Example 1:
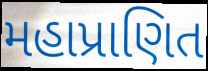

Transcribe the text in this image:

મહાપ્રાણિત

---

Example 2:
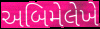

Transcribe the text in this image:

અબિમેલેખે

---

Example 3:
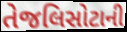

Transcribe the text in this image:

તેજલિસોટાની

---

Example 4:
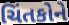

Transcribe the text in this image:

ચિંતકોને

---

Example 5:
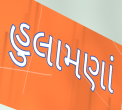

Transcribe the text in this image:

હુલામણાં